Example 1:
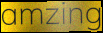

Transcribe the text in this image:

amzing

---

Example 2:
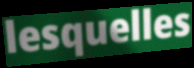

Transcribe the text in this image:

lesquelles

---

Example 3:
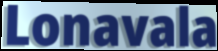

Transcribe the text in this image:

Lonavala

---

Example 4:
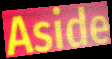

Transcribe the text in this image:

Aside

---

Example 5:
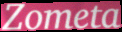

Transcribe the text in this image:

Zometa